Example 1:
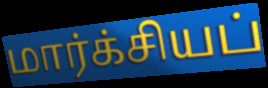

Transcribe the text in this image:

மார்க்சியப்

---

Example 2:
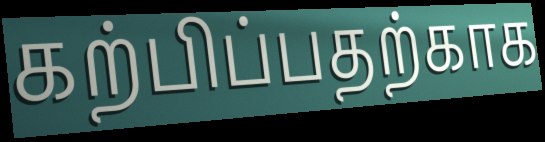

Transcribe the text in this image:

கற்பிப்பதற்காக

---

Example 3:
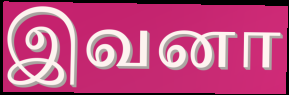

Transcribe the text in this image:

இவனா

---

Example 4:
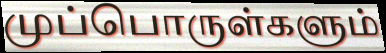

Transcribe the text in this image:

முப்பொருள்களும்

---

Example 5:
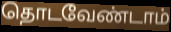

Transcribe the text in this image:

தொடவேண்டாம்